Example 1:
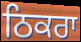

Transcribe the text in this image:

ਠਿਕਰਾ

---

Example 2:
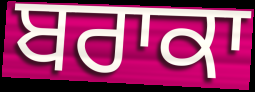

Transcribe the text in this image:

ਬਰਾਕਾ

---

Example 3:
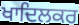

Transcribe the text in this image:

ਖਾਦਿਲਕਰ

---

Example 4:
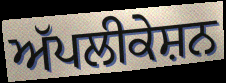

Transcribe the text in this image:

ਅੱਪਲੀਕੇਸ਼ਨ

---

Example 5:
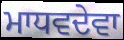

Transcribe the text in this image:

ਮਾਧਵਦੇਵਾ